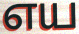
எய